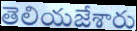
తెలియజేశారు